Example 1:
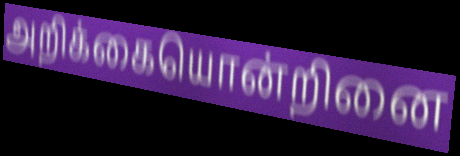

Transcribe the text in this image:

அறிக்கையொன்றினை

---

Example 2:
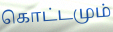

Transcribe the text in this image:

கொட்டமும்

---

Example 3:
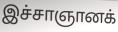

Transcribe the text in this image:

இச்சாஞானக்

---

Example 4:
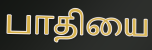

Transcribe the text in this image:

பாதியை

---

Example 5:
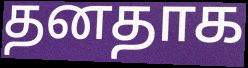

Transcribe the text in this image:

தனதாக